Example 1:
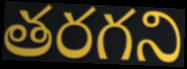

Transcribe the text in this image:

తరగని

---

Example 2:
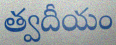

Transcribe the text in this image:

త్వదీయం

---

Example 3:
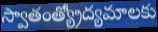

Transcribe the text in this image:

స్వాతంత్య్రోద్యమాలకు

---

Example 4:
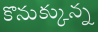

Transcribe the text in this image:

కొనుక్కున్న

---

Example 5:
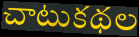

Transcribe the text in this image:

చాటుకథల